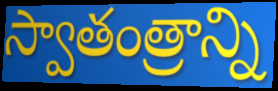
స్వాతంత్రాన్ని